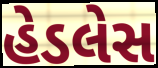
હેડલેસ